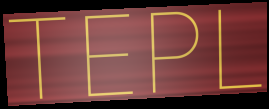
TEPL